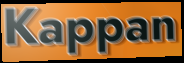
Kappan